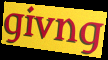
givng